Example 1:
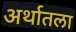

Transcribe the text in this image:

अर्थातला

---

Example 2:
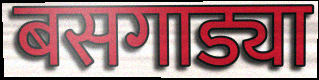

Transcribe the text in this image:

बसगाड्या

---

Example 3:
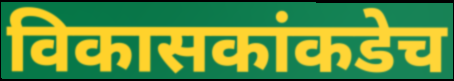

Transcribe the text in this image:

विकासकांकडेच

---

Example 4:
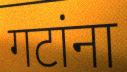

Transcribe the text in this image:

गटांना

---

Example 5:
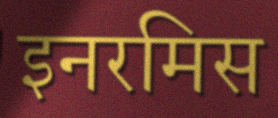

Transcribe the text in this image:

इनरमिस